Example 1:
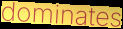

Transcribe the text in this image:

dominates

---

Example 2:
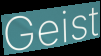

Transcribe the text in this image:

Geist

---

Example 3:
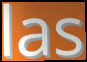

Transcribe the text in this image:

las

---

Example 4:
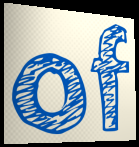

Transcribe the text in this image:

of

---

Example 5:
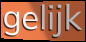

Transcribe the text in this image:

gelijk